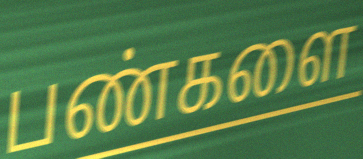
பண்களை